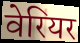
वेरियर